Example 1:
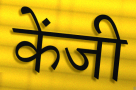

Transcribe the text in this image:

केंजी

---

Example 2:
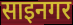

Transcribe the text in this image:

साइनगर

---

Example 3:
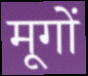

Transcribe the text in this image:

मूगों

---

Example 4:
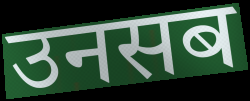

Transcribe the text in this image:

उनसब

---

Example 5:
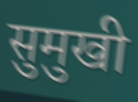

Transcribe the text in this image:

सुमुखी